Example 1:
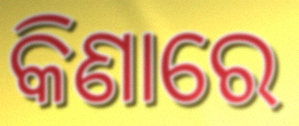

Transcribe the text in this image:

କିଣାରେ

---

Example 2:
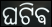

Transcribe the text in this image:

ଘଟିଵ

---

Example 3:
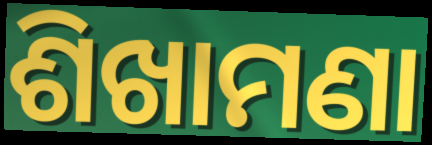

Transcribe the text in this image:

ଶିଖାମଣା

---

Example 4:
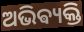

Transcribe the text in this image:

ଅଭିଵ୍ୟକ୍ତି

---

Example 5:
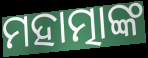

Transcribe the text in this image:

ମହାତ୍ମାଙ୍କ